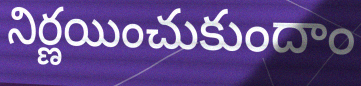
నిర్ణయించుకుందాం